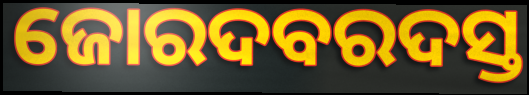
ଜୋରଦବରଦସ୍ତ